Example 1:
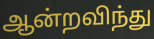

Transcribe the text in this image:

ஆன்றவிந்து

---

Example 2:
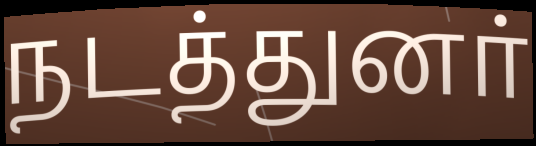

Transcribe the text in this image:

நடத்துனர்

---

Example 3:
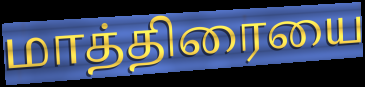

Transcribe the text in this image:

மாத்திரையை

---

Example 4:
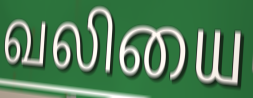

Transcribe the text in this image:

வலியை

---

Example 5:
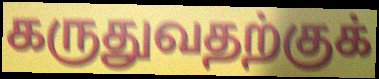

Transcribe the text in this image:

கருதுவதற்குக்